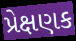
પ્રેક્ષણક